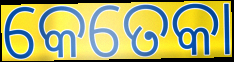
କେତେକା